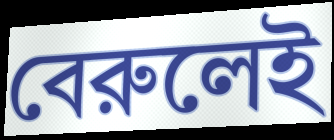
বেরুলেই